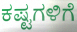
ಕಷ್ಟಗಳಿಗೆ